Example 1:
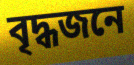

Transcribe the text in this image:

বৃদ্ধজনে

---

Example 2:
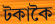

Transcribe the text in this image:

টকাকৈ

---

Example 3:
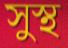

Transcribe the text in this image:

সুস্থ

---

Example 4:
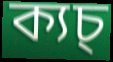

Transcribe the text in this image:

ক্যচ্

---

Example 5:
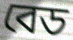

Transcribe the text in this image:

বেড